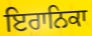
ਇਰਾਨਿਕਾ